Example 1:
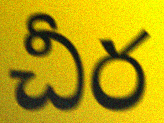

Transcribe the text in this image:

చీర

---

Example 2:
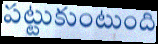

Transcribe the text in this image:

పట్టుకుంటుంది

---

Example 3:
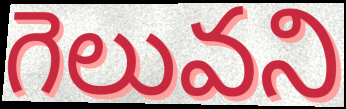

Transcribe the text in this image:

గెలువని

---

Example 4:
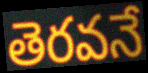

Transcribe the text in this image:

తెరవనే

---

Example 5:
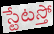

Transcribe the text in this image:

స్టేటస్తో